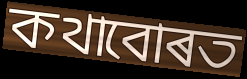
কথাবোৰত